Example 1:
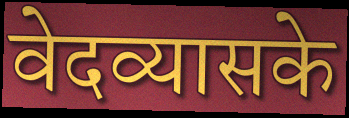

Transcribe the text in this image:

वेदव्यासके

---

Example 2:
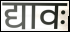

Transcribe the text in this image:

द्यावः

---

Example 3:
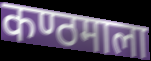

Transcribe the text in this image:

कण्ठमाला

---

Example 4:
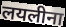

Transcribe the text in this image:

लयलीना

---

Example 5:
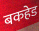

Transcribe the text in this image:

बकहेड